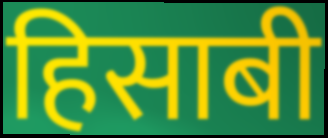
हिसाबी